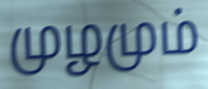
முழமும்